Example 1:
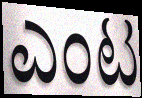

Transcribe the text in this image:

ಎಂಟ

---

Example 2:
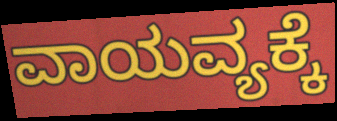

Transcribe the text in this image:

ವಾಯವ್ಯಕ್ಕೆ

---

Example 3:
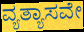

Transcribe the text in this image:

ವ್ಯತ್ಯಾಸವೇ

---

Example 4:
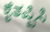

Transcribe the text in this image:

ಕೈತಪ್ಪಿಸಿ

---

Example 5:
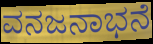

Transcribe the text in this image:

ವನಜನಾಭನೆ